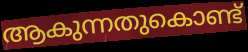
ആകുന്നതുകൊണ്ട്